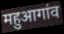
महुआगांव